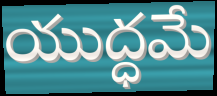
యుద్ధమే